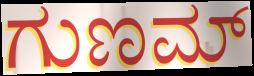
ಗುಣಮ್